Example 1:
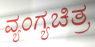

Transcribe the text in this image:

ವ್ಯಂಗ್ಯಚಿತ್ರ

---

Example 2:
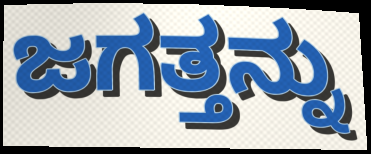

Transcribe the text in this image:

ಜಗತ್ತನ್ನು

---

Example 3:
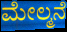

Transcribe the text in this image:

ಮೇಲ್ಮನೆ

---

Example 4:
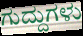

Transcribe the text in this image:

ಗುದ್ದುಗಳು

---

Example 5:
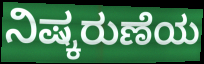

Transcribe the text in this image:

ನಿಷ್ಕರುಣೆಯ